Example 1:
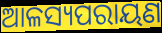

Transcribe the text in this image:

ଆଳସ୍ୟପରାୟଣ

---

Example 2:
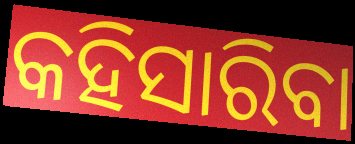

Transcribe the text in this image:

କହିସାରିବା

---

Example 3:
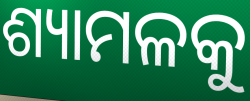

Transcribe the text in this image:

ଶ୍ୟାମଳକୁ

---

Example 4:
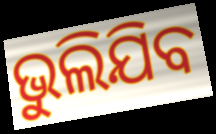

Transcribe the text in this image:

ଭୁଲିଯିବ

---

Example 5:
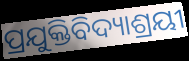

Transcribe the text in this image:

ପ୍ରଯୁକ୍ତିବିଦ୍ୟାଶ୍ରୟୀ